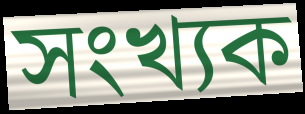
সংখ্যক